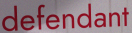
defendant